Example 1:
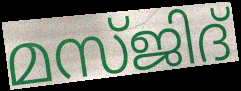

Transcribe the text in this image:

മസ്ജിദ്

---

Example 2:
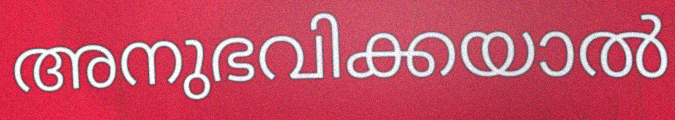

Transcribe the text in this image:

അനുഭവിക്കയാൽ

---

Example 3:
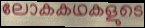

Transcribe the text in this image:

ലോകകഥകളുടെ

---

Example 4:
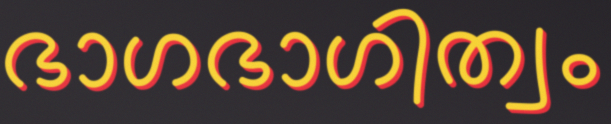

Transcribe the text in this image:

ഭാഗഭാഗിത്വം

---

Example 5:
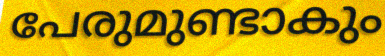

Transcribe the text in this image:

പേരുമുണ്ടാകും